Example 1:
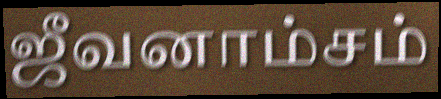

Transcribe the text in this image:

ஜீவனாம்சம்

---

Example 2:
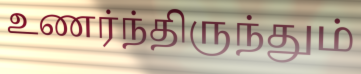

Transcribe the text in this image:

உணர்ந்திருந்தும்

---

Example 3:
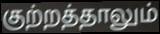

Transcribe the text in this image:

குற்றத்தாலும்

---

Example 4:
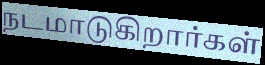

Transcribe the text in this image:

நடமாடுகிறார்கள்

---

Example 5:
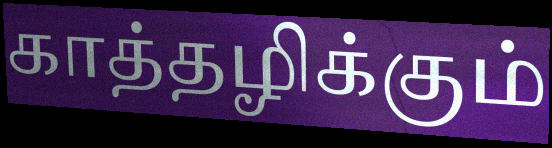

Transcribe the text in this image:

காத்தழிக்கும்